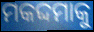
ମକଦ୍ଦମାକୁ